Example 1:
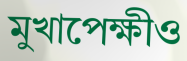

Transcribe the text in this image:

মুখাপেক্ষীও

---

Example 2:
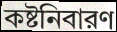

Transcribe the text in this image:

কষ্টনিবারণ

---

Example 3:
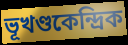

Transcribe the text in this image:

ভূখণ্ডকেন্দ্রিক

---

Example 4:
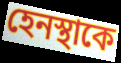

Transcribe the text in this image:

হেনস্থাকে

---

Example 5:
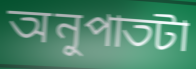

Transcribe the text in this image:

অনুপাতটা